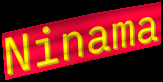
Ninama